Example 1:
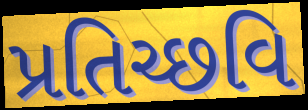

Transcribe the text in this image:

પ્રતિચ્છવિ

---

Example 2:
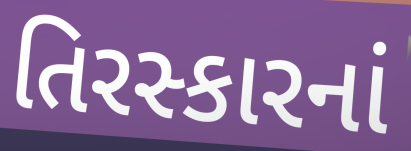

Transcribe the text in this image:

તિરસ્કારનાં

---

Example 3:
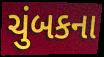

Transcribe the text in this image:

ચુંબકના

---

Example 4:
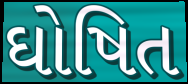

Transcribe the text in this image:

ઘોષિત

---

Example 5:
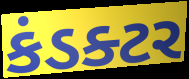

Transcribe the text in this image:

કંડક્ટર